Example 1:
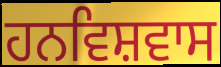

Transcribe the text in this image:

ਹਨਵਿਸ਼ਵਾਸ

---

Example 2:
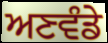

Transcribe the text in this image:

ਅਣਵੰਡੇ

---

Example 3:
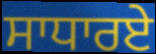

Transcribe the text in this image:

ਸਾਧਾਰਏ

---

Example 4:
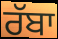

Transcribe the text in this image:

ਰੱਬਾ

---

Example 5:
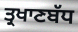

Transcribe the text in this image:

ਤ੍ਰਖਾਣਬੱਧ